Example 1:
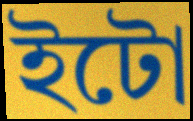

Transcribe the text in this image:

ইটো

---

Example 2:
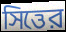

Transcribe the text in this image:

সিত্তের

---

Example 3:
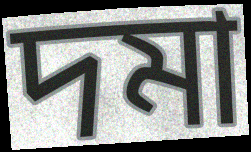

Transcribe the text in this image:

দমা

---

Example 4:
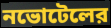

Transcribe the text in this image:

নভোটেলের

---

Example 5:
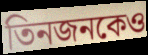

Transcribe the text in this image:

তিনজনকেও